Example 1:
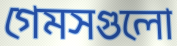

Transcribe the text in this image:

গেমসগুলো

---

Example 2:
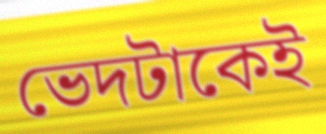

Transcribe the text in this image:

ভেদটাকেই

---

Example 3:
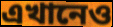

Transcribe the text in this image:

এখানেও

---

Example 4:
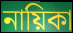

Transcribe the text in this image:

নায়িকা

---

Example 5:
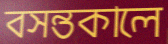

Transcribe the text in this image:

বসন্তকালে